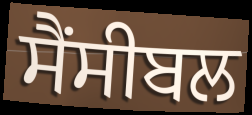
ਸੈਂਸੀਬਲ